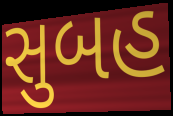
સુબહ